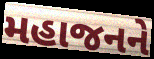
મહાજનને